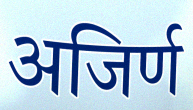
अजिर्ण